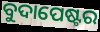
ବୁଦାପେଷ୍ଟର